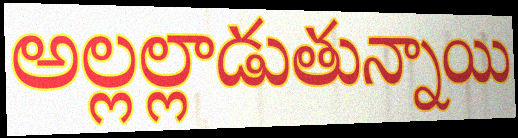
అల్లల్లాడుతున్నాయి